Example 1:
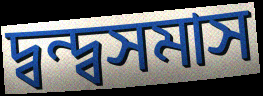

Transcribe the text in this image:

দ্বন্দ্বসমাস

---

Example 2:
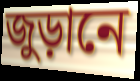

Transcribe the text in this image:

জুড়ানে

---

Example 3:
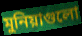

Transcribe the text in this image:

মুনিয়াগুলো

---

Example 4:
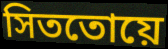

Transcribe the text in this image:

সিততোয়ে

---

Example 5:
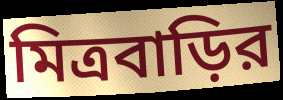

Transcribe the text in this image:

মিত্রবাড়ির